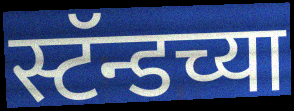
स्टॅन्डच्या